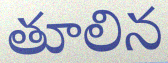
తూలిన